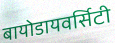
बायोडायवर्सिटी